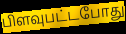
பிளவுபட்டபோது